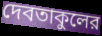
দেবতাকুলের